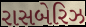
રાસબેરિઝ